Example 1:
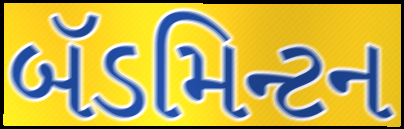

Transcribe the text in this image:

બૅડમિન્ટન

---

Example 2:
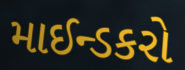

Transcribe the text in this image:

માઈન્ડકરો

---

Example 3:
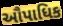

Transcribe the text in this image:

ઔપાધિક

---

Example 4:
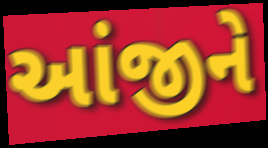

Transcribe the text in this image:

આંજીને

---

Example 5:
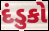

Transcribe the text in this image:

દંડુકો